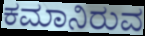
ಕಮಾನಿರುವ